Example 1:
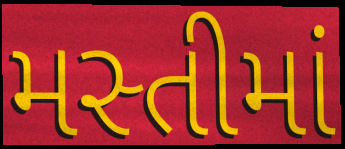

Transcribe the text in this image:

મસ્તીમાં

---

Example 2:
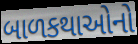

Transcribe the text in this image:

બાળકથાઓનો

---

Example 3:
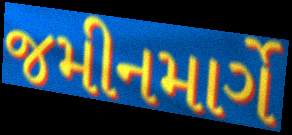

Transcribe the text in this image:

જમીનમાર્ગે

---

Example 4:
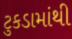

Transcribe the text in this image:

ટુકડામાંથી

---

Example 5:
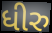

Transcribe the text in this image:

ધીરુ